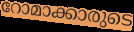
റോമാക്കാരുടെ